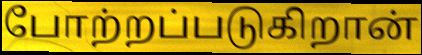
போற்றப்படுகிறான்